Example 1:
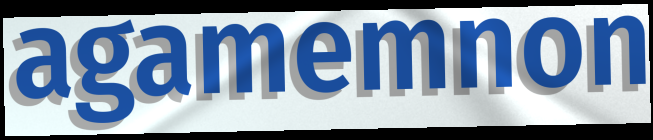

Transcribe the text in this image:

agamemnon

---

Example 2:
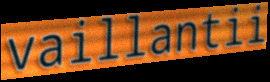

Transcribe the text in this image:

vaillantii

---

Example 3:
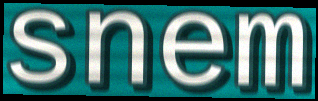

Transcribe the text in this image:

snem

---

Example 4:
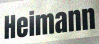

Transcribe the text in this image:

Heimann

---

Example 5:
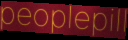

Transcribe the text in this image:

peoplepill